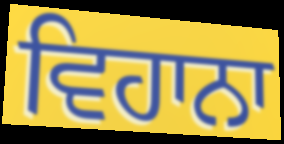
ਵਿਹਾਨਾ